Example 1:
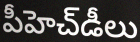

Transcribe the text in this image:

పీహెచ్‌డీలు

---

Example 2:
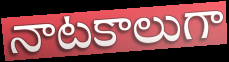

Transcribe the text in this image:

నాటకాలుగా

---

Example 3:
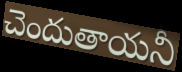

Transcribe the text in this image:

చెందుతాయనీ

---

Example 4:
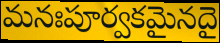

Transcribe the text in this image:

మనఃపూర్వకమైనదై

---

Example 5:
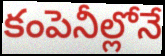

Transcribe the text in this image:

కంపెనీల్లోనే